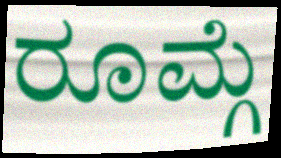
ರೂಮ್ಗೆ